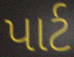
પાર્ટ